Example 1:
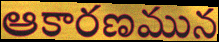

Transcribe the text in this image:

ఆకారణమున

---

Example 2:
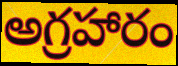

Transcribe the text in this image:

అగ్రహారం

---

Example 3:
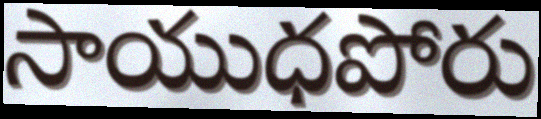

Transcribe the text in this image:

సాయుధపోరు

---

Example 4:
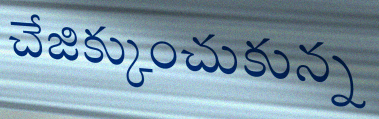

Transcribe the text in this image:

చేజిక్కుంచుకున్న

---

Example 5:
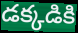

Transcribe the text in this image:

డక్కడికి